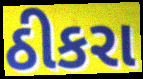
ઠીકરા